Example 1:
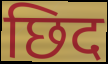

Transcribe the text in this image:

छिद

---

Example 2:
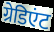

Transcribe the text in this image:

ग्रेडिएंट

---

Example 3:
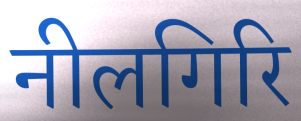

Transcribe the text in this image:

नीलगिरि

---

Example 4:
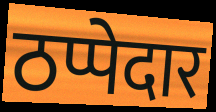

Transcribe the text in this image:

ठप्पेदार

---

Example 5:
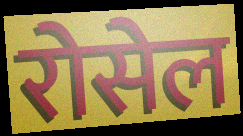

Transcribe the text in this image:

रोसेल